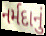
નર્મદાનું